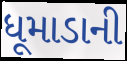
ધૂમાડાની